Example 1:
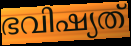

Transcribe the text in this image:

ഭവിഷ്യത്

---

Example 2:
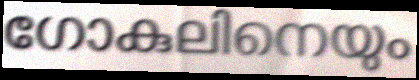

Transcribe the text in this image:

ഗോകുലിനെയും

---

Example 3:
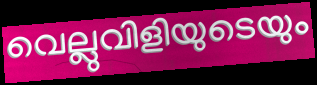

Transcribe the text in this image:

വെല്ലുവിളിയുടെയും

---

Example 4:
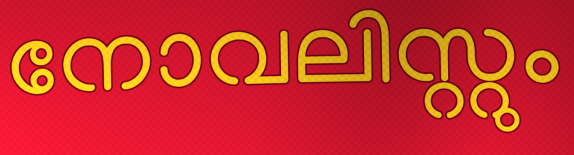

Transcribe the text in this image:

നോവലിസ്റ്റും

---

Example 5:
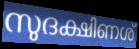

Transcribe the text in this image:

സുദക്ഷിണശ്